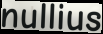
nullius